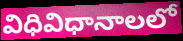
విధివిధానాలలో